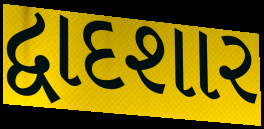
દ્વાદશાર